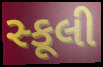
સ્કૂલી